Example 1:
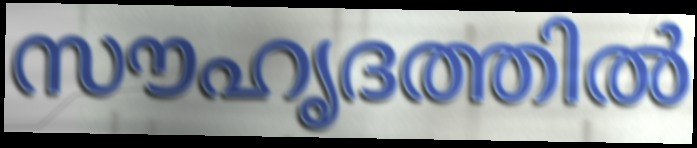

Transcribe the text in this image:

സൗഹൃദത്തിൽ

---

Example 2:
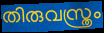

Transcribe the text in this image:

തിരുവസ്ത്രം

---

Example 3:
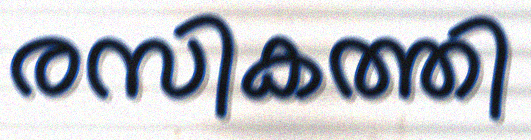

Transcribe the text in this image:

രസികത്തി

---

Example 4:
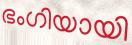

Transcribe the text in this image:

ഭംഗിയായി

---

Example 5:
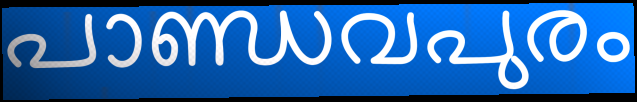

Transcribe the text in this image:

പാണ്ഡവപുരം